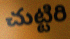
చుట్టిరి